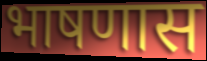
भाषणास